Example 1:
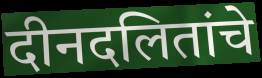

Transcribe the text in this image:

दीनदलितांचे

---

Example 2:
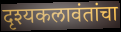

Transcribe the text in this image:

दृश्यकलावंतांचा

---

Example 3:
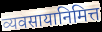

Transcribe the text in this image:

व्यवसायानिमित्त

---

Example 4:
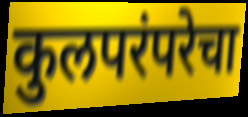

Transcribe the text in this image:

कुलपरंपरेचा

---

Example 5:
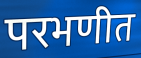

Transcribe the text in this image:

परभणीत